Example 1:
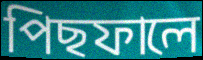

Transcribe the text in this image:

পিছফালে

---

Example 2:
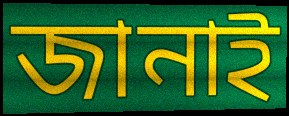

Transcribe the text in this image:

জানাই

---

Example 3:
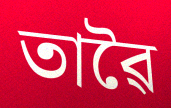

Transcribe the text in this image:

তাৱৈ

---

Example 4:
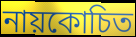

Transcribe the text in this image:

নায়কোচিত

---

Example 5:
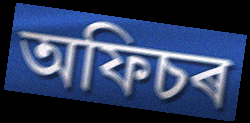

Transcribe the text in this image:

অফিচৰ